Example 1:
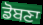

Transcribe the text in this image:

ਡੋਬਣਾ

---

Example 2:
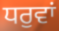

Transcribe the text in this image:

ਧਰੁਵਾਂ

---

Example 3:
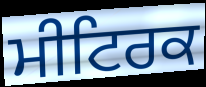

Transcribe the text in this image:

ਮੀਟਿਰਕ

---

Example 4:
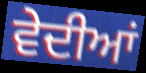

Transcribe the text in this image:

ਵੇਦੀਆਂ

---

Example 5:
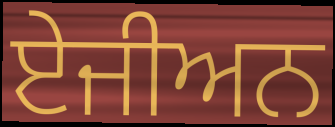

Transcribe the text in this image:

ਏਜੀਅਨ